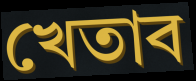
খেতাব